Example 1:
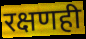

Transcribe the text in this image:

रक्षणही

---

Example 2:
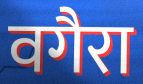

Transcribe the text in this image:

वगैरा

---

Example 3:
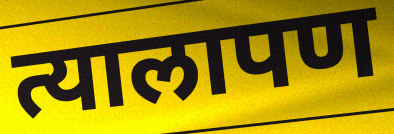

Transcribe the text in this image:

त्यालापण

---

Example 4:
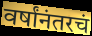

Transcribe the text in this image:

वर्षांनंतरचं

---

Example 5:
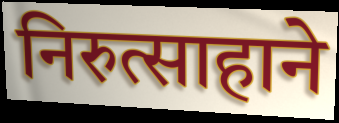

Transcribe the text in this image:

निरुत्साहाने